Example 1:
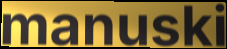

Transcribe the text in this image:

manuski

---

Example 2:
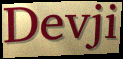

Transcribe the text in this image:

Devji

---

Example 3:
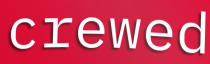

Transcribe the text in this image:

crewed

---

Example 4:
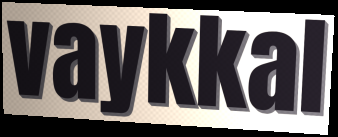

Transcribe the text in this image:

vaykkal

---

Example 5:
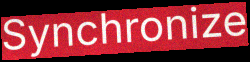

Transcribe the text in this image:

Synchronize